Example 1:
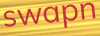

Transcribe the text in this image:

swapn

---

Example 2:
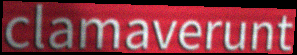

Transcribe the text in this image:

clamaverunt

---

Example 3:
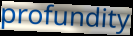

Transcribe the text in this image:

profundity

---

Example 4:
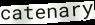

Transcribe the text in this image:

catenary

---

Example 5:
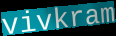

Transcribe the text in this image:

vivkram